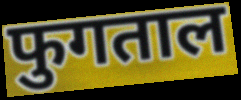
फुगताल